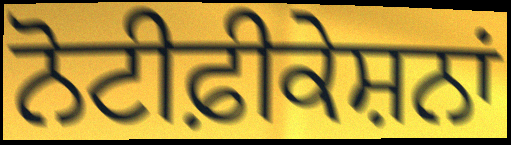
ਨੋਟੀਫ਼ੀਕੇਸ਼ਨਾਂ